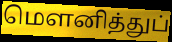
மெளனித்துப்